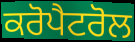
ਕਰੋਪੈਟਰੋਲ